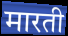
मारती